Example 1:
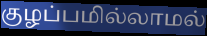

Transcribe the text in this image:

குழப்பமில்லாமல்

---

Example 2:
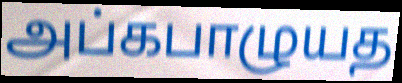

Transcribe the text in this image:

அப்கபாழுயத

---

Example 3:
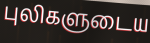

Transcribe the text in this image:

புலிகளுடைய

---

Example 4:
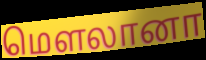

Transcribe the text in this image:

மௌலானா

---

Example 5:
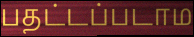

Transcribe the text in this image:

பதட்டப்படாம